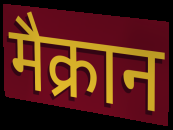
मैक्रान